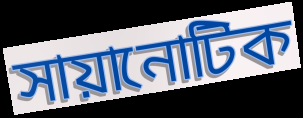
সায়ানোটিক